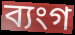
ব্যংগ